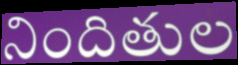
నిందితుల